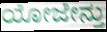
ಯೋಜೇನ್ತು